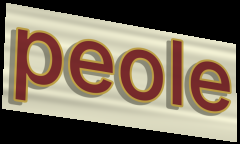
peole